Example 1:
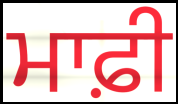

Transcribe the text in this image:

ਮਾਫ਼ੀ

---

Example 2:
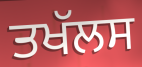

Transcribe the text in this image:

ਤਖੱਲਸ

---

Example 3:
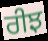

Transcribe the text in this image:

ਰੀਝ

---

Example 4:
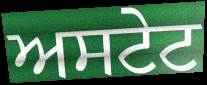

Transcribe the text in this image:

ਅਸਟੇਟ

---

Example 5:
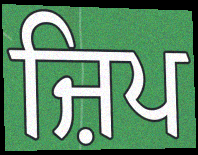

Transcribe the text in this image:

ਜ਼ਿਪ